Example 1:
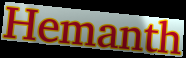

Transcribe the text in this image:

Hemanth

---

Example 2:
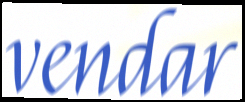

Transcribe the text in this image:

vendar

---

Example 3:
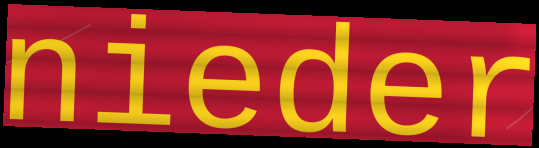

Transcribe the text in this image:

nieder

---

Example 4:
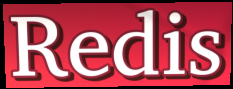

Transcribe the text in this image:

Redis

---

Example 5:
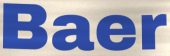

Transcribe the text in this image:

Baer